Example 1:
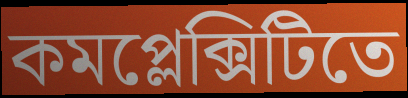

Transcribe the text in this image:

কমপ্লেক্সিটিতে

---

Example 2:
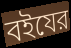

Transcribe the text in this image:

বইযের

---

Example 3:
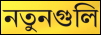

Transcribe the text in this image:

নতুনগুলি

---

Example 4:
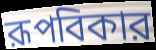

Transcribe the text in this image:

রূপবিকার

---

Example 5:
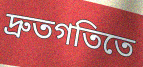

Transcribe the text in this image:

দ্রুতগতিতে